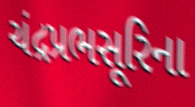
ચંદ્રપ્રભસૂરિના